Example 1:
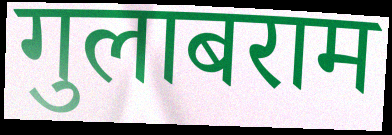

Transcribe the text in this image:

गुलाबराम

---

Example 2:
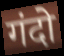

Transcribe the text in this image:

गंदो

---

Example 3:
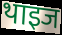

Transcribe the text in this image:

थाइज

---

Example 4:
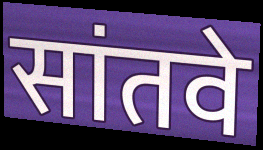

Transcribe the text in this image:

सांतवे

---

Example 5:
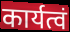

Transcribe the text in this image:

कार्यत्वं